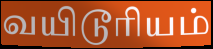
வயிடூரியம்